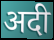
अदी